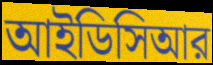
আইডিসিআর